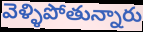
వెళ్ళిపోతున్నారు